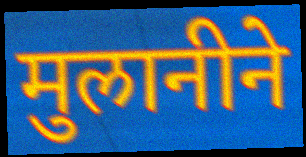
मुलानीने